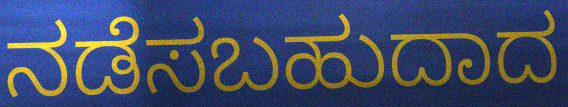
ನಡೆಸಬಹುದಾದ